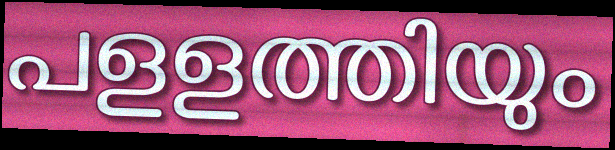
പളളത്തിയും